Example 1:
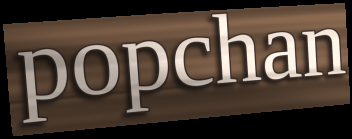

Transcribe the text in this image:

popchan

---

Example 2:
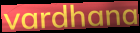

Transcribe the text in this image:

vardhana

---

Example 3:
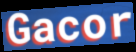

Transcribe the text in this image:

Gacor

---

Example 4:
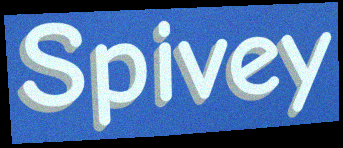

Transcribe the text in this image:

Spivey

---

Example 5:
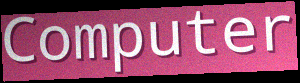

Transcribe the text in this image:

Computer